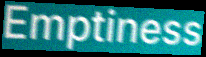
Emptiness